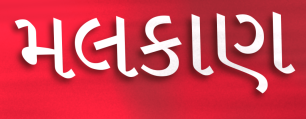
મલકાણ